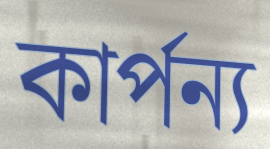
কার্পন্য